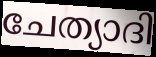
ചേത്യാദി